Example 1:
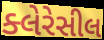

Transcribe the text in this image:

ક્લેરેસીલ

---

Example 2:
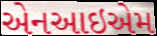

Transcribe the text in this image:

એનઆઇએમ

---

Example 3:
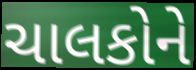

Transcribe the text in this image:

ચાલકોને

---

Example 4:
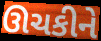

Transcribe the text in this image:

ઊચકીને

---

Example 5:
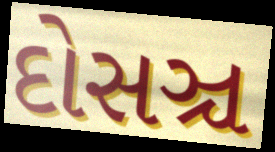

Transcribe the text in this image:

દોસઞ્ચ